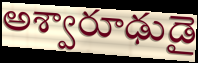
అశ్వారూఢుడై